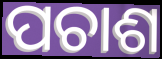
ପଚାଶ